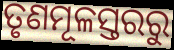
ତୃଣମୂଳସ୍ତରରୁ